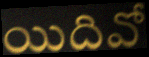
యిదివో